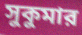
সুকুমার